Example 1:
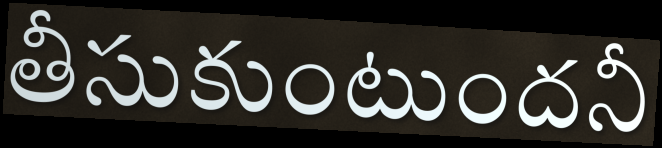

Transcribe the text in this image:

తీసుకుంటుందనీ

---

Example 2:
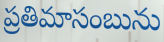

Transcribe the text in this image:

ప్రతిమాసంబును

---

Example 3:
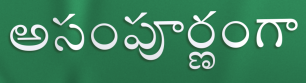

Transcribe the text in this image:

అసంపూర్ణంగా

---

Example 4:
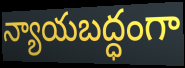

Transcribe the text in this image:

న్యాయబద్ధంగా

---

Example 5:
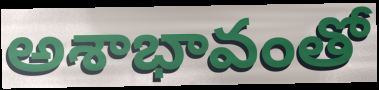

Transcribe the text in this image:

అశాభావంతో